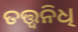
ତତ୍ତ୍ଵନିଧି